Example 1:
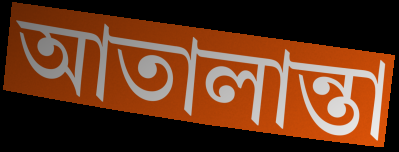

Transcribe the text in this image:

আতালান্তা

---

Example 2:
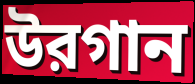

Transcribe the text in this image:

উরগান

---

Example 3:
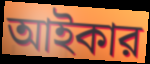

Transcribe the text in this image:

আইকার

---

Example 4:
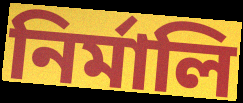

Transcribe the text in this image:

নির্মালি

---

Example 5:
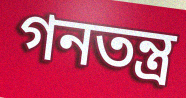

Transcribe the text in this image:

গনতন্ত্র